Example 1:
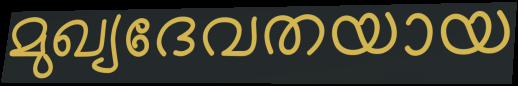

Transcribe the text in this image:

മുഖ്യദേവതയായ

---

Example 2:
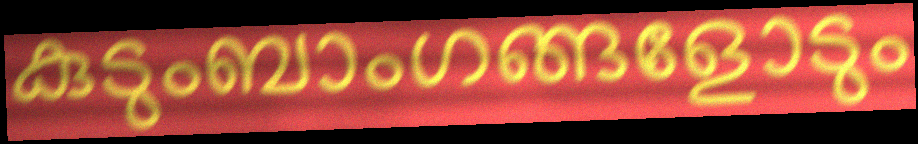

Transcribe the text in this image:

കുടുംബാംഗങ്ങളോടും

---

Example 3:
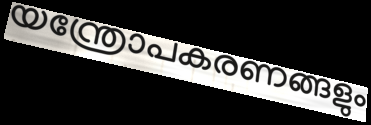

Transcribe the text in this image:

യന്ത്രോപകരണങ്ങളും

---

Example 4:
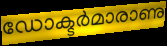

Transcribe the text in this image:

ഡോക്ടർമാരാണു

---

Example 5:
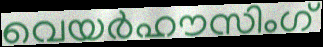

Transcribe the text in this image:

വെയർഹൗസിംഗ്